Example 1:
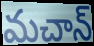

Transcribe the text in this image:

మచాన్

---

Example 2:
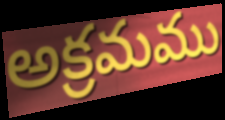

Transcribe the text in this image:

అక్రమము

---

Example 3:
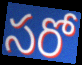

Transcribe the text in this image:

సరో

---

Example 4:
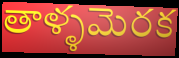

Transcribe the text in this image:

తాళ్ళమెరక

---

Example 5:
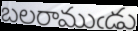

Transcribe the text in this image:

బలరాముఁడు